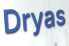
Dryas